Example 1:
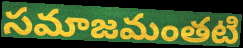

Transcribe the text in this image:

సమాజమంతటి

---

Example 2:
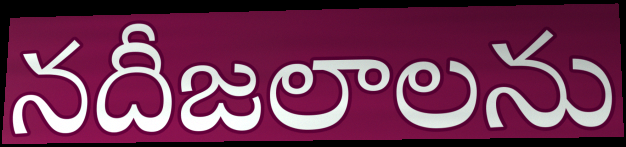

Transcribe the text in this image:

నదీజలాలను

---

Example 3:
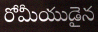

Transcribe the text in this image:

రోమీయుడైన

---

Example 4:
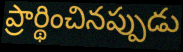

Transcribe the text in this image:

ప్రార్థించినప్పుడు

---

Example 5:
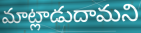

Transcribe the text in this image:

మాట్లాడుదామని